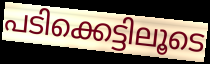
പടിക്കെട്ടിലൂടെ